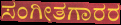
ಸಂಗೀತಗಾರರ